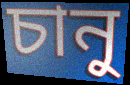
চানু